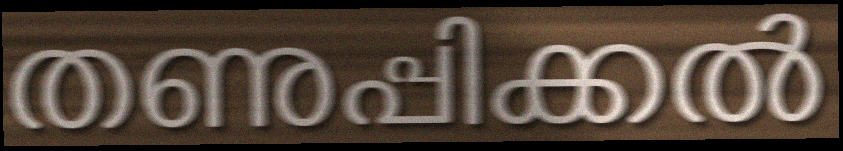
തണുപ്പിക്കൽ